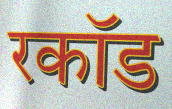
रकॉड